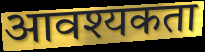
आवश्‍यकता